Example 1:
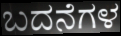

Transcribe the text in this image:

ಬದನೆಗಳ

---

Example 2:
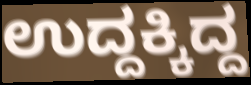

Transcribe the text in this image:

ಉದ್ದಕ್ಕಿದ್ದ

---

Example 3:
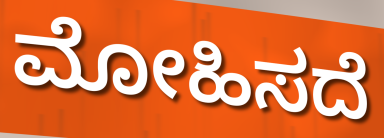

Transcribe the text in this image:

ಮೋಹಿಸದೆ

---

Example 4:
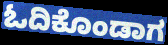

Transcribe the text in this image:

ಓದಿಕೊಂಡಾಗ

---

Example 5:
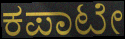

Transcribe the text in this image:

ಕಪಾಟೇ